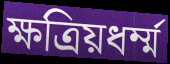
ক্ষত্রিয়ধর্ম্ম